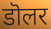
डॊलर